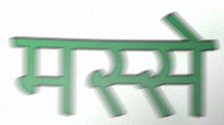
मस्से